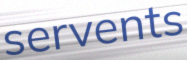
servents